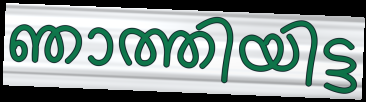
ഞാത്തിയിട്ട